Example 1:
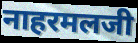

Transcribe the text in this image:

नाहरमलजी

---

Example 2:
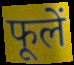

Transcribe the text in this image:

फूलें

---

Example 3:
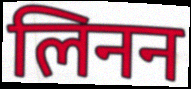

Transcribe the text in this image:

लिनन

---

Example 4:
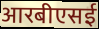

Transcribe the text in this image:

आरबीएसई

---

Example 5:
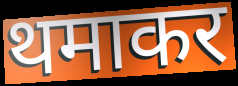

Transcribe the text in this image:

थमाकर